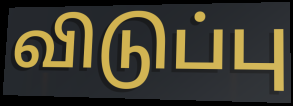
விடுப்பு